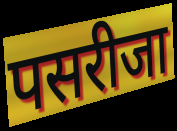
पसरीजा